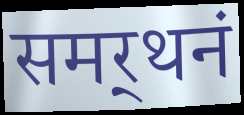
समर्थनं